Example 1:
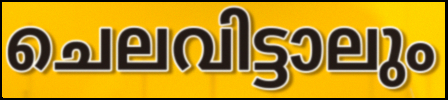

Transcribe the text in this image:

ചെലവിട്ടാലും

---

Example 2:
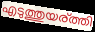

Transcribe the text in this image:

എടുത്തുയര്ത്തി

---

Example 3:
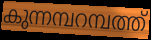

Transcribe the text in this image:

കുന്നമ്പറമ്പത്ത്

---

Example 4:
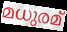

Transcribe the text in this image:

മധുരമ്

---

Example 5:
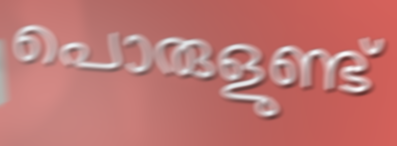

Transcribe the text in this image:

പൊരുളുണ്ട്